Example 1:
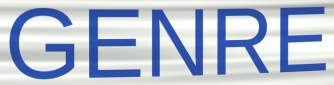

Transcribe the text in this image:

GENRE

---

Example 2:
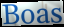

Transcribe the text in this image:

Boas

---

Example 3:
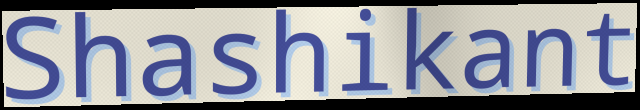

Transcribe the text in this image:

Shashikant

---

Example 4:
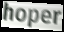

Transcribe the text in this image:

hoper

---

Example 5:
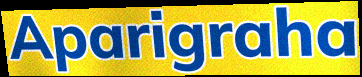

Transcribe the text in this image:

Aparigraha